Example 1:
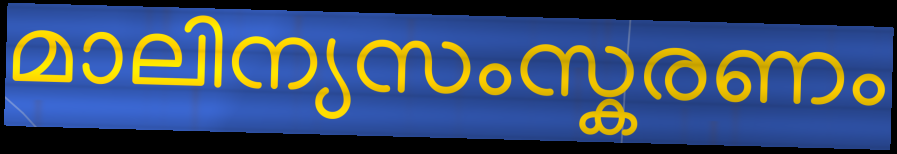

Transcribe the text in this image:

മാലിന്യസംസ്കരണം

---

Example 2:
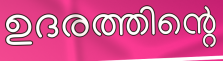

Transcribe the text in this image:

ഉദരത്തിന്റെ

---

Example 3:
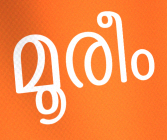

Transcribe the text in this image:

മൂരീം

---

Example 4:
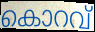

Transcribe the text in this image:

കൊറവ്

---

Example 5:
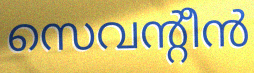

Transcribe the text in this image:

സെവന്റീൻ